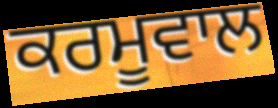
ਕਰਮੂਵਾਲ